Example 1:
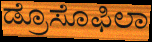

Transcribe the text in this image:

ಡ್ರೊಸೊಫಿಲಾ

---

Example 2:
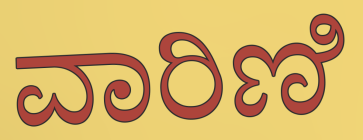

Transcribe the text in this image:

ವಾರಿಣಿ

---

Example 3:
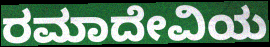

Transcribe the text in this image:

ರಮಾದೇವಿಯ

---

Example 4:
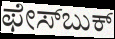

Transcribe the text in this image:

ಫೇಸ್‍ಬುಕ್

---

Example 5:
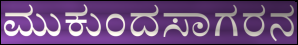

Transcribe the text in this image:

ಮುಕುಂದಸಾಗರನ